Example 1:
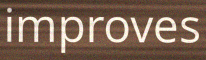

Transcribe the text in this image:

improves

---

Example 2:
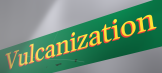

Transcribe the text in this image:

Vulcanization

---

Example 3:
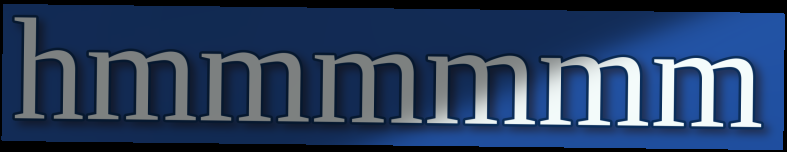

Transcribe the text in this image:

hmmmmmm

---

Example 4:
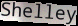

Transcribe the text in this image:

Shelley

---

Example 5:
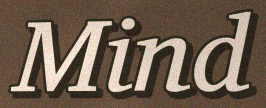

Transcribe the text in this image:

Mind